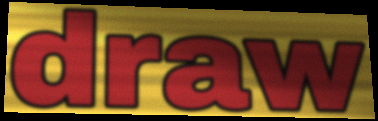
draw